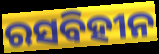
ରସବିହୀନ